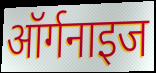
ऑर्गनाइज